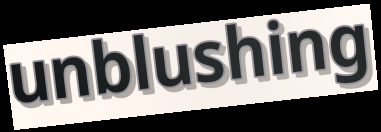
unblushing